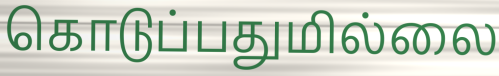
கொடுப்பதுமில்லை